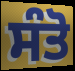
ਸੰਤੋ